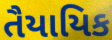
તૈયાયિક